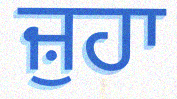
ਜ਼ੁਹਾ